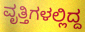
ವೃತ್ತಿಗಳಲ್ಲಿದ್ದ